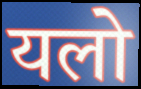
यलो